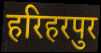
हरिहरपुर